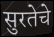
सुरतेचे